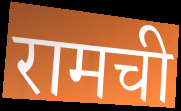
रामची